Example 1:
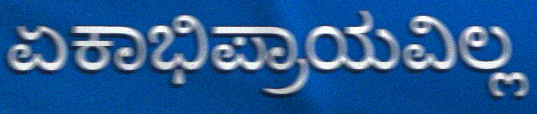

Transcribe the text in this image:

ಏಕಾಭಿಪ್ರಾಯವಿಲ್ಲ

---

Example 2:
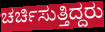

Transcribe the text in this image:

ಚರ್ಚಿಸುತ್ತಿದ್ದರು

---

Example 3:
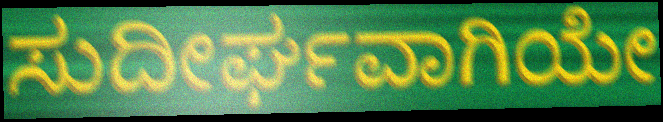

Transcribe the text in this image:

ಸುದೀರ್ಘವಾಗಿಯೇ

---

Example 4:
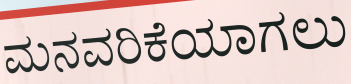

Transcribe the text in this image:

ಮನವರಿಕೆಯಾಗಲು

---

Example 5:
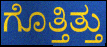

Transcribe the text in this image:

ಗೊತ್ತಿತ್ತು